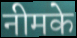
नीमके